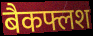
बैकफ्लश